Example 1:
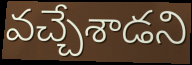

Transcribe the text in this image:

వచ్చేశాడని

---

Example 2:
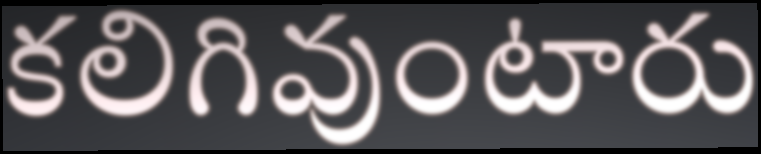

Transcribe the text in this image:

కలిగివుంటారు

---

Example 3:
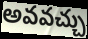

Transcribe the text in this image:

అవవచ్చు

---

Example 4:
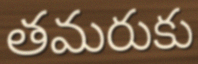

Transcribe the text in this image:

తమరుకు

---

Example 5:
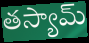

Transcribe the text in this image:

తస్యామ్